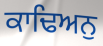
ਕਾਢਿਅਨੁ